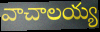
వాచాలయ్య